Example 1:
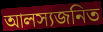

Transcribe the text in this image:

আলস্যজনিত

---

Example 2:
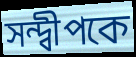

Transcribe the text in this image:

সন্দ্বীপকে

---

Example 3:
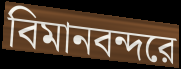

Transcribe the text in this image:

বিমানবন্দরে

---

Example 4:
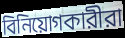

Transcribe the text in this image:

বিনিয়োগকারীরা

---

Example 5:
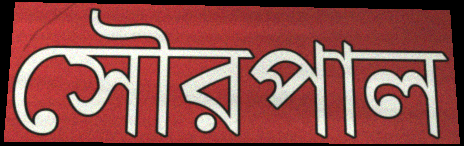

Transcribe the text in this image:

সৌরপাল